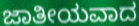
ಜಾತೀಯವಾದ